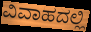
ವಿವಾಹದಲ್ಲಿ